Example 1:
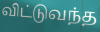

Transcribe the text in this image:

விட்டுவந்த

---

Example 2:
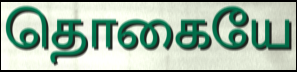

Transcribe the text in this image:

தொகையே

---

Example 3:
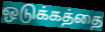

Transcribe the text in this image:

ஒடுக்கத்தை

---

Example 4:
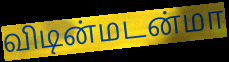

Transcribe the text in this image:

விடின்மடன்மா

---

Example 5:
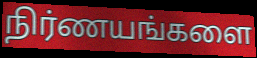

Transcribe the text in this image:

நிர்ணயங்களை